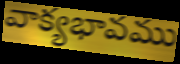
వాక్యభావము